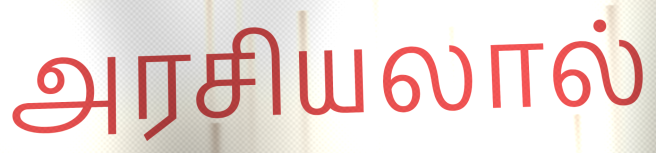
அரசியலால்